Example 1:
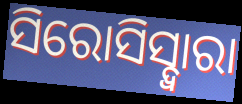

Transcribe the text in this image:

ସିରୋସିସ୍ଦ୍ୱାରା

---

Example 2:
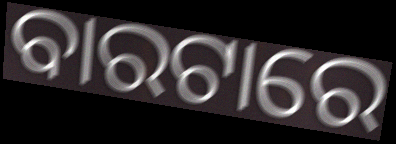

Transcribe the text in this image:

ବାରଟାରେ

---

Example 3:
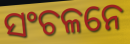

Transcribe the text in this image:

ସଂଚଳନେ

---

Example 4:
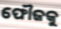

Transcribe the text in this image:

ଫୌଜକୁ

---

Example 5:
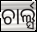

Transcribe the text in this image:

ଚାର୍ଲ୍ସ